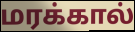
மரக்கால்